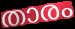
താരം